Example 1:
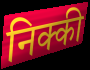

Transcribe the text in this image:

निक्‍की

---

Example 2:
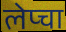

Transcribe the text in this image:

लेप्चा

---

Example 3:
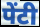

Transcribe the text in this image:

पेंटी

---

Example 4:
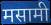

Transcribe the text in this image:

मसामी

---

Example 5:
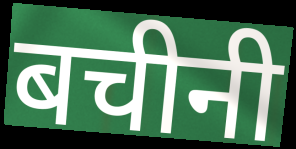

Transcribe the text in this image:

बचीनी